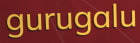
gurugalu